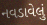
નવડાવેલું